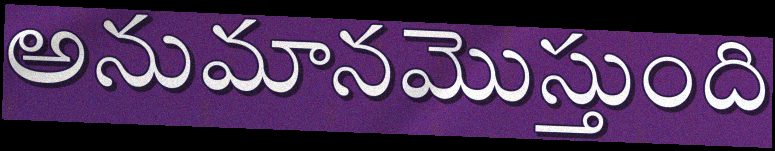
అనుమానమొస్తుంది